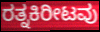
ರತ್ನಕಿರೀಟವು